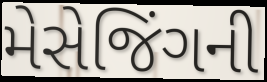
મેસેજિંગની